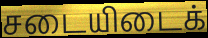
சடையிடைக்